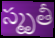
స్మృతీ